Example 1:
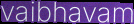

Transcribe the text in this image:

vaibhavam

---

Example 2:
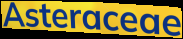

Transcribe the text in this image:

Asteraceae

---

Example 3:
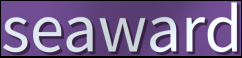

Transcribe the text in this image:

seaward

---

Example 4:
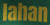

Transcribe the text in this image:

lahan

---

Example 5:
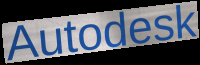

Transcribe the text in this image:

Autodesk